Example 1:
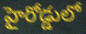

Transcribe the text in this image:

హైరోడ్డులో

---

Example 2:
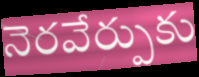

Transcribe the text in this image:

నెరవేర్పుకు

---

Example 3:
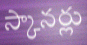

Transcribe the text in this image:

స్కానర్లు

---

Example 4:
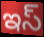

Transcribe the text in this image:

ఇస్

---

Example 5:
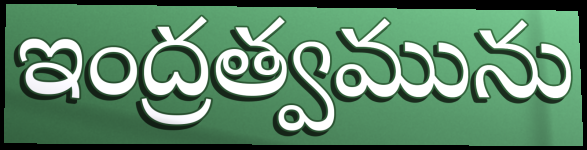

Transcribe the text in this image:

ఇంద్రత్వమును